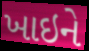
ખાઇને